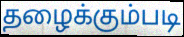
தழைக்கும்படி